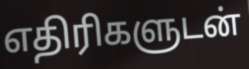
எதிரிகளுடன்